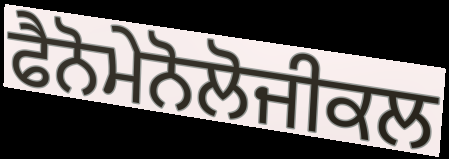
ਫੈਨੋਮੇਨੋਲੋਜੀਕਲ